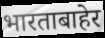
भारताबाहेर